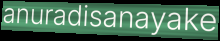
anuradisanayake